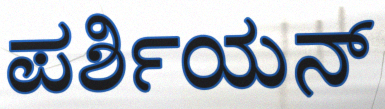
ಪರ್ಶಿಯನ್